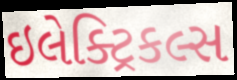
ઇલેક્ટ્રિકલ્સ